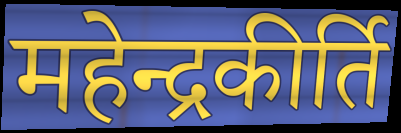
महेन्द्रकीर्ति